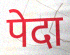
पेदा